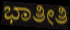
ಭಾತೀತಿ